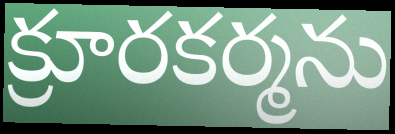
క్రూరకర్మను